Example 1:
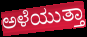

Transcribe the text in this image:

ಅಳೆಯುತ್ತಾ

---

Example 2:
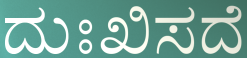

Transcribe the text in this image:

ದುಃಖಿಸದೆ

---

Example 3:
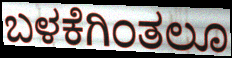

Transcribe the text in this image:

ಬಳಕೆಗಿಂತಲೂ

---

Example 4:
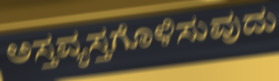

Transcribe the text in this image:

ಅಸ್ತವ್ಯಸ್ತಗೊಳಿಸುವುದು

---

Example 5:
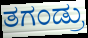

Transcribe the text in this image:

ತಗಂಡ್ರು